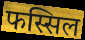
फस्सिल